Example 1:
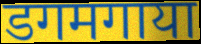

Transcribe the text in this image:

डगमगाया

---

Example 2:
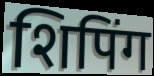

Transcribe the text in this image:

शिपिंग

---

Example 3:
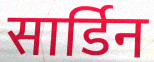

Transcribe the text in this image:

सार्डिन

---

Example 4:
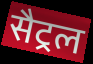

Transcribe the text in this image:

सैट्रल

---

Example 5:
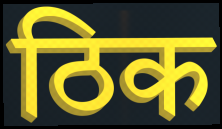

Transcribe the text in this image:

ठिक